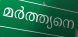
മർത്ത്യനെ